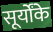
सूर्योंके